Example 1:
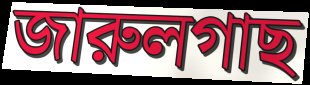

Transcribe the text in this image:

জারুলগাছ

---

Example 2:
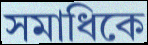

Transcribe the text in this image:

সমাধিকে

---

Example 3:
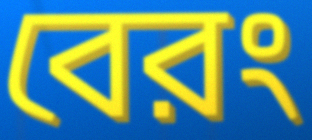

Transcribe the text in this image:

বেরং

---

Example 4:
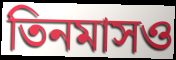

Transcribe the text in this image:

তিনমাসও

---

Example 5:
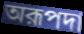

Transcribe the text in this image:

অরূপদা